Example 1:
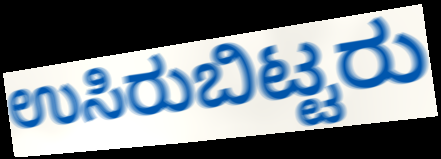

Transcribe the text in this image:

ಉಸಿರುಬಿಟ್ಟರು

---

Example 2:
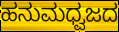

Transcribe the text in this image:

ಹನುಮಧ್ವಜದ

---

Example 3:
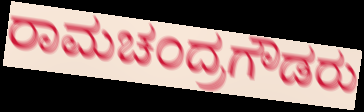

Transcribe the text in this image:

ರಾಮಚಂದ್ರಗೌಡರು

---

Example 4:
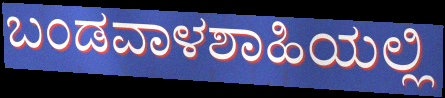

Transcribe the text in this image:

ಬಂಡವಾಳಶಾಹಿಯಲ್ಲಿ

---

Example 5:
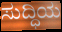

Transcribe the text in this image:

ಸುದ್ಧಿಯ